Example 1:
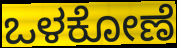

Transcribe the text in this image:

ಒಳಕೋಣೆ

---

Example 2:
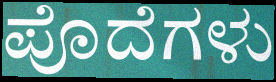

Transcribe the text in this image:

ಪೊದೆಗಳು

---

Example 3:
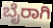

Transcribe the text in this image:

ಬೈರಾಗಿ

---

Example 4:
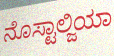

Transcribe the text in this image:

ನೊಸ್ಟಾಲ್ಜಿಯಾ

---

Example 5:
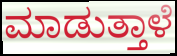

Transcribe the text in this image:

ಮಾಡುತ್ತಾಳೆ